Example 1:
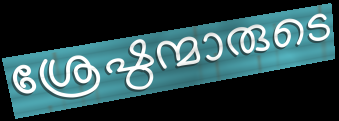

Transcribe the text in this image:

ശ്രേഷ്ഠന്മാരുടെ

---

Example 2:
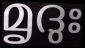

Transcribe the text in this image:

മൃദുഃ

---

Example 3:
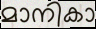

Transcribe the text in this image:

മാനികാ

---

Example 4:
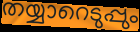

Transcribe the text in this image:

തയ്യാറെടുപ്പും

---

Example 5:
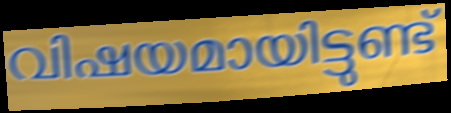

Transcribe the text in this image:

വിഷയമായിട്ടുണ്ട്